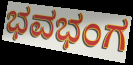
ಭವಭಂಗ